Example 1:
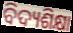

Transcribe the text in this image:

ବିଦ୍ୟଶିକ୍ଷା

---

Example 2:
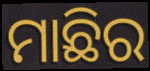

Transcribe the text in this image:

ମାଛିର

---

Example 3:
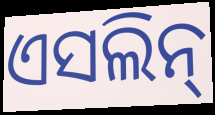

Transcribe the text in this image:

ଏସଲିନ୍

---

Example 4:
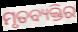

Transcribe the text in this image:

ମୃତବ୍ୟକ୍ତିର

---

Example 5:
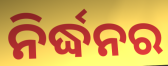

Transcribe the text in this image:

ନିର୍ଦ୍ଧନର